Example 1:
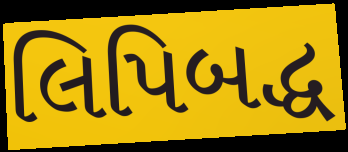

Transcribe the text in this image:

લિપિબદ્ધ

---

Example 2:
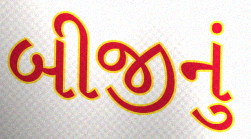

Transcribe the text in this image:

બીજીનું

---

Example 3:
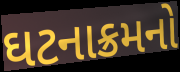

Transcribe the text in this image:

ઘટનાક્રમનો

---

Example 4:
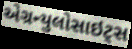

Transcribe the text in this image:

એગ્રન્યુલોસાઇટ્સ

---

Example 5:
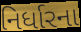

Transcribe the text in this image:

નિર્ધારના